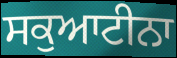
ਸਕੁਆਟੀਨਾ